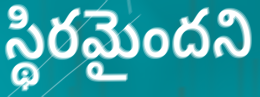
స్థిరమైందని